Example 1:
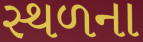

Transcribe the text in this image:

સ્થળના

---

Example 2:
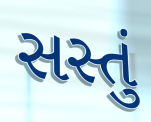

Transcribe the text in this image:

સસ્તું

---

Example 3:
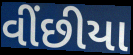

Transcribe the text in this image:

વીંછીયા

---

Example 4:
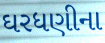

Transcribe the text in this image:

ઘરધણીના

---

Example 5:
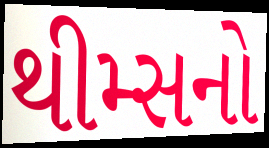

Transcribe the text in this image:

થીમ્સનો